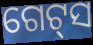
ଗେଟ୍‌ସ